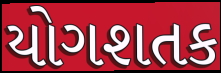
યોગશતક